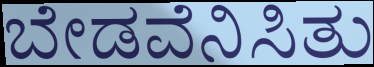
ಬೇಡವೆನಿಸಿತು